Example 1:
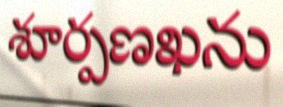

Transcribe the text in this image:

శూర్పణఖను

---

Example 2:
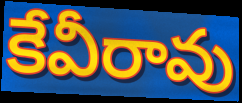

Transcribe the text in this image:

కేవీరావు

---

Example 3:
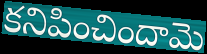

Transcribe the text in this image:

కనిపించిందామె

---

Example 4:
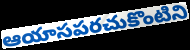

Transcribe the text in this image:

ఆయాసపరచుకొంటిని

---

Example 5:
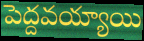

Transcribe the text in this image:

పెద్దవయ్యాయి